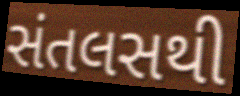
સંતલસથી